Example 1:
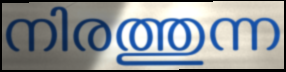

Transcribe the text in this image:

നിരത്തുന്ന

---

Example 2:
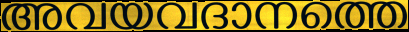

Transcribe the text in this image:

അവയവദാനത്തെ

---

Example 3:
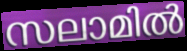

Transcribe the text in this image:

സലാമിൽ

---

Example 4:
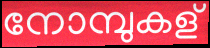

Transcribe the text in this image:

നോമ്പുകള്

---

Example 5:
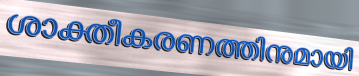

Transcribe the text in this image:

ശാക്തീകരണത്തിനുമായി